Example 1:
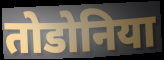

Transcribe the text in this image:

तोडोनिया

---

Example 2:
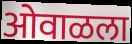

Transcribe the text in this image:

ओवाळला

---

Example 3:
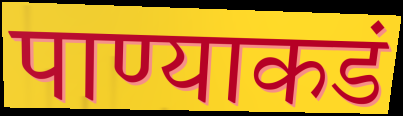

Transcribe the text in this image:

पाण्याकडं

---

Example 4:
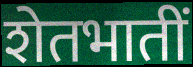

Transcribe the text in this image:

शेतभातीं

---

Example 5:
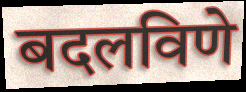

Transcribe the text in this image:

बदलविणे